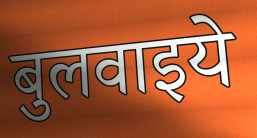
बुलवाइये